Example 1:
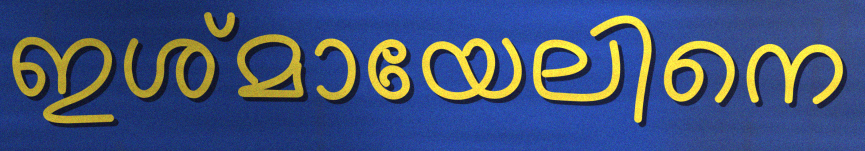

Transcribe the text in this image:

ഇശ്മായേലിനെ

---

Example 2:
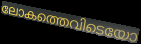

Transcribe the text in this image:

ലോകത്തെവിടെയോ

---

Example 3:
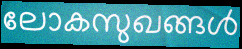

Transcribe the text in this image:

ലോകസുഖങ്ങൾ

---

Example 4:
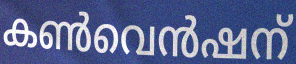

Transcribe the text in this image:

കൺവെൻഷന്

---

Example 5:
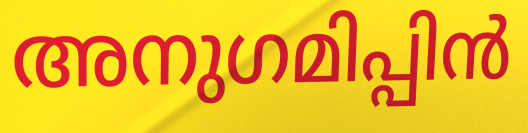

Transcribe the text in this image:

അനുഗമിപ്പിൻ